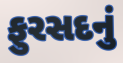
ફુરસદનું